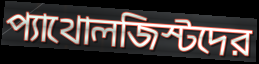
প্যাথোলজিস্টদের